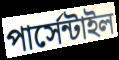
পার্সেন্টাইল